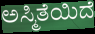
ಅಸ್ಮಿತೆಯಿದೆ